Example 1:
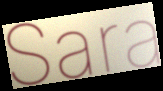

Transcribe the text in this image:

Sara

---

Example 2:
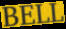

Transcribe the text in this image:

BELL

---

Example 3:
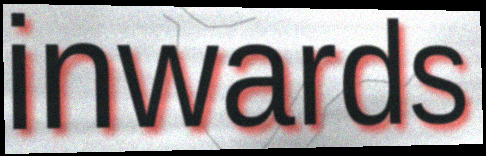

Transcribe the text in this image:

inwards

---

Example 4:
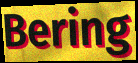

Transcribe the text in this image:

Bering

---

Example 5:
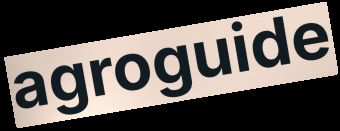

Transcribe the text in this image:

agroguide